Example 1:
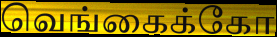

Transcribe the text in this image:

வெங்கைக்கோ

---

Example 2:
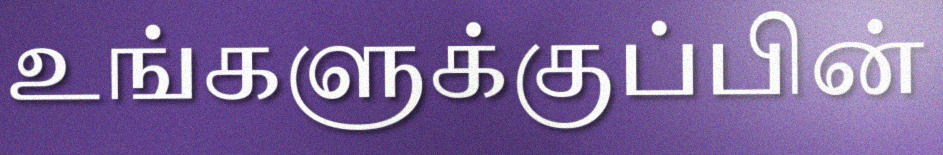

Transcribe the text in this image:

உங்களுக்குப்பின்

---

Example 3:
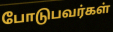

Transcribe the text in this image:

போடுபவர்கள்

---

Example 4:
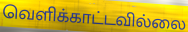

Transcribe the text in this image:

வெளிக்காட்டவில்லை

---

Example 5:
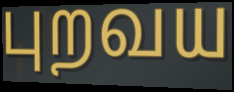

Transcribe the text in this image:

புறவய